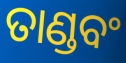
ତାଣ୍ଡବଂ